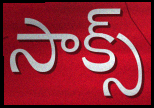
సాక్స్